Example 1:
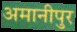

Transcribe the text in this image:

अमानीपुर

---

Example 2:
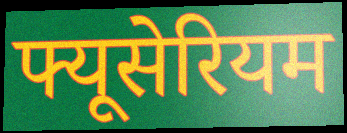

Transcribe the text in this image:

फ्यूसेरियम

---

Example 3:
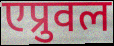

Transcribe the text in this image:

एप्रुवल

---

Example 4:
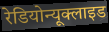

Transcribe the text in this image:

रेडियोन्यूक्लाइड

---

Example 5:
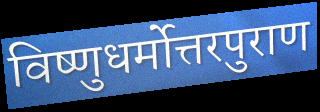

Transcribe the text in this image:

विष्णुधर्मोत्तरपुराण